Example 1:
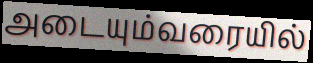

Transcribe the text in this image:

அடையும்வரையில்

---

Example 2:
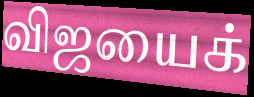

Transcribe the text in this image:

விஜயைக்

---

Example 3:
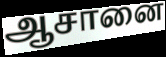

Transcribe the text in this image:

ஆசானை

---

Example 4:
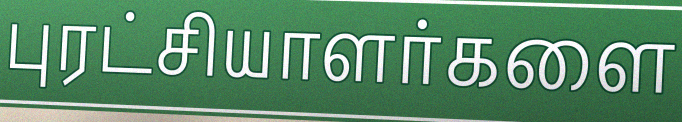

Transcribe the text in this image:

புரட்சியாளர்களை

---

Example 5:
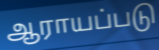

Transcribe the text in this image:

ஆராயப்படு